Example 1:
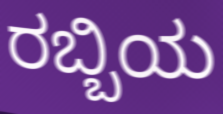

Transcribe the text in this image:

ರಬ್ಬಿಯ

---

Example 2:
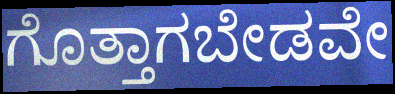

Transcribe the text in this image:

ಗೊತ್ತಾಗಬೇಡವೇ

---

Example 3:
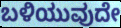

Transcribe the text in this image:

ಬಳಿಯುವುದೇ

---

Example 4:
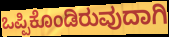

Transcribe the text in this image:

ಒಪ್ಪಿಕೊಂಡಿರುವುದಾಗಿ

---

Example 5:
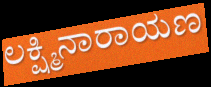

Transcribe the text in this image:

ಲಕ್ಷ್ಮಿನಾರಾಯಣ